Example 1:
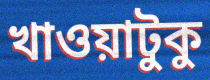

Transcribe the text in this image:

খাওয়াটুকু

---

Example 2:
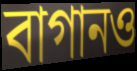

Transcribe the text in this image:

বাগানও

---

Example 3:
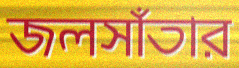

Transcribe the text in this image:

জলসাঁতার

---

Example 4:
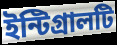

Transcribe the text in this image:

ইন্টিগ্রালটি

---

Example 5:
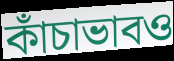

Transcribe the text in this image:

কাঁচাভাবও